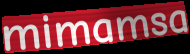
mimamsa